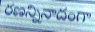
రణన్నినాదంగా